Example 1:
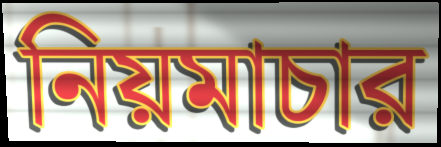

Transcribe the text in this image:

নিয়মাচার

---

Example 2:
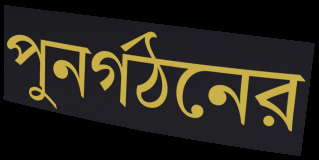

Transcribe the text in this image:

পুনর্গঠনের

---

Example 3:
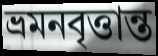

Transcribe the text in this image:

ভ্রমনবৃত্তান্ত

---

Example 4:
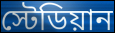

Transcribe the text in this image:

স্টেডিয়ান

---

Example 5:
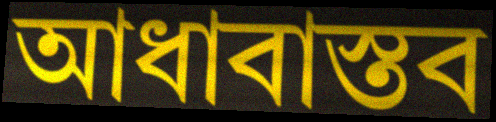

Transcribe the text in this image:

আধাবাস্তব